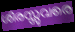
ശിരസ്സുവരെ